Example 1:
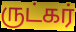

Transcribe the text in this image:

ருட்கர்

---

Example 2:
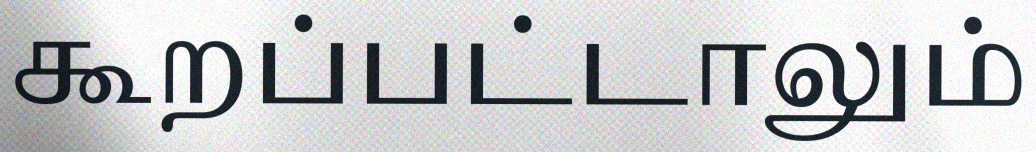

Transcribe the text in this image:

கூறப்பட்டாலும்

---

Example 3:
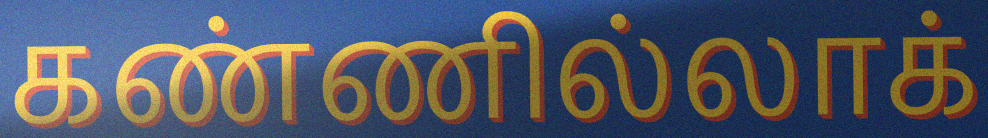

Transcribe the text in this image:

கண்ணில்லாக்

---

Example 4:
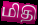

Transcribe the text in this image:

மிதி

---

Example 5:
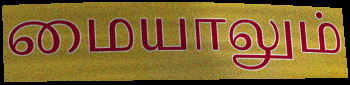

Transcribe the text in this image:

மையாலும்